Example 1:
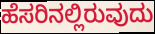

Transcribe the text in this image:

ಹೆಸರಿನಲ್ಲಿರುವುದು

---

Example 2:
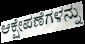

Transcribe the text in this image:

ಆಕ್ಷೇಪಣೆಗಳನ್ನು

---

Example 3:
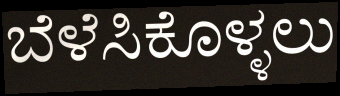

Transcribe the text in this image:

ಬೆಳೆಸಿಕೊಳ್ಳಲು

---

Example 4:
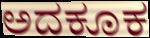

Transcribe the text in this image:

ಅದಕೂಕ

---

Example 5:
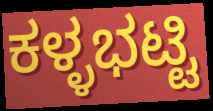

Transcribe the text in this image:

ಕಳ್ಳಭಟ್ಟಿ